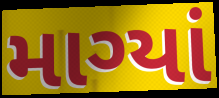
માગ્યાં